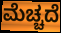
ಮೆಚ್ಚದೆ